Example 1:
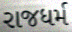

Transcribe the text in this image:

રાજધર્મ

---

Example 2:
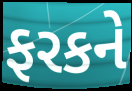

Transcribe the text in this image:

ફરકને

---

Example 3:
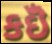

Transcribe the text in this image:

કઇઁં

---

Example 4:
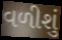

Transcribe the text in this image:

વળીશું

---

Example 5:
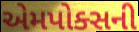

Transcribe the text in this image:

એમપોક્સની